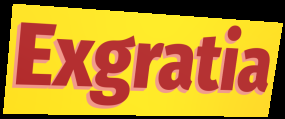
Exgratia